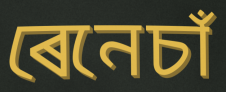
ৰেনেচাঁ